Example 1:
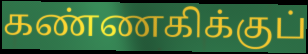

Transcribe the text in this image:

கண்ணகிக்குப்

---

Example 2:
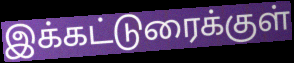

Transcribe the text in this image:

இக்கட்டுரைக்குள்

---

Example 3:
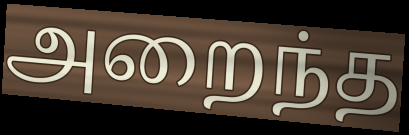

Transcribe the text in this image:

அறைந்த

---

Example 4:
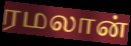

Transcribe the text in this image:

ரமலான்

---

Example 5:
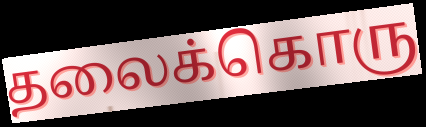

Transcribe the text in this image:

தலைக்கொரு